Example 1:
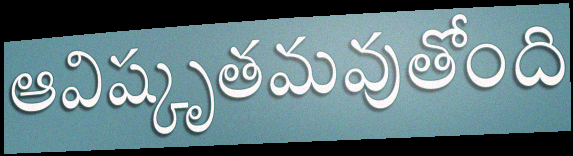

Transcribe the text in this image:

ఆవిష్కృతమవుతోంది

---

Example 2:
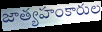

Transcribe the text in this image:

జాత్యహంకారుల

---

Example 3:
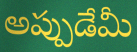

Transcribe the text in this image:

అప్పుడేమీ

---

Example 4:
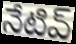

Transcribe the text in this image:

నేటివ్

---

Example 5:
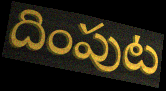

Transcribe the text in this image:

దింపుట